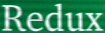
Redux